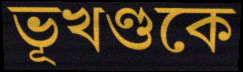
ভূখণ্ডকে